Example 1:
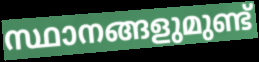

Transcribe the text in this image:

സ്ഥാനങ്ങളുമുണ്ട്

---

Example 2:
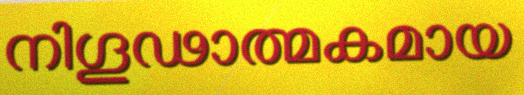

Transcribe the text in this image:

നിഗൂഢാത്മകമായ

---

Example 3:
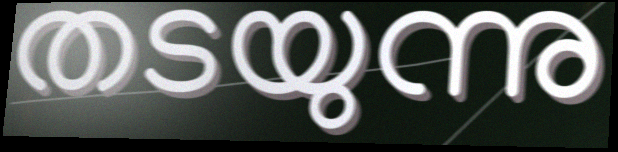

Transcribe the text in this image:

തടയുന്നു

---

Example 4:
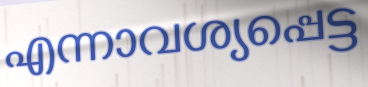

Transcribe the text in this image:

എന്നാവശ്യപ്പെട്ട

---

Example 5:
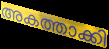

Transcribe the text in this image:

അകത്താക്കി